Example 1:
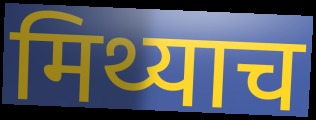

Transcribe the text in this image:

मिथ्याच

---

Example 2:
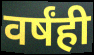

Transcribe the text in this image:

वर्षंही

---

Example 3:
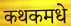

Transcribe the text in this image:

कथकमधे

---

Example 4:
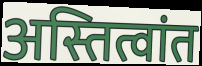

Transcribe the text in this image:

अस्तित्वांत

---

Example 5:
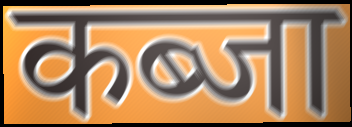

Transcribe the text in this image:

कब्जा